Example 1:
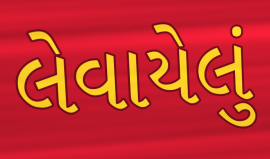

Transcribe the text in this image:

લેવાયેલું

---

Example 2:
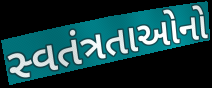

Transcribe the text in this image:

સ્વતંત્રતાઓનો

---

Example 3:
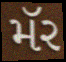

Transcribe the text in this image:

મૅર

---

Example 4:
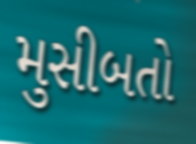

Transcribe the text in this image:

મુસીબતો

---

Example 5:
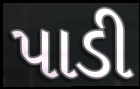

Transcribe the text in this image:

પાડી